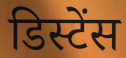
डिस्टेंस